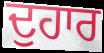
ਦੁਹਾਰ